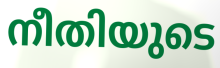
നീതിയുടെ